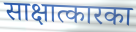
साक्षात्कारका